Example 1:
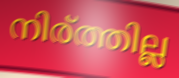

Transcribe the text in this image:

നിര്ത്തില്ല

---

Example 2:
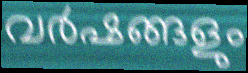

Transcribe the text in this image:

വർഷങ്ങളും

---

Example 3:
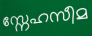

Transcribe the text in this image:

സ്നേഹസീമ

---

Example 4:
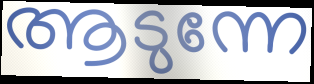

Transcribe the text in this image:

ആടുന്നേ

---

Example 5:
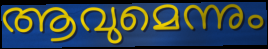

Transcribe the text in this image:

ആവുമെന്നും